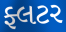
ફ્લટર